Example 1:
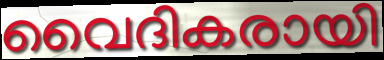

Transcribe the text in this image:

വൈദികരായി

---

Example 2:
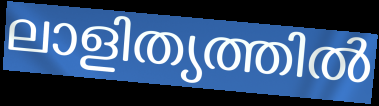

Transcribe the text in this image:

ലാളിത്യത്തിൽ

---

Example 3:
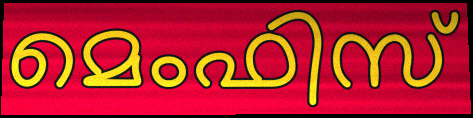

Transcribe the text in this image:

മെംഫിസ്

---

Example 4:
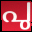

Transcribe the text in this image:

പു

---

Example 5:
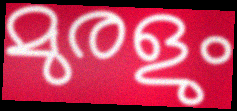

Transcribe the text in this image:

മുരളും